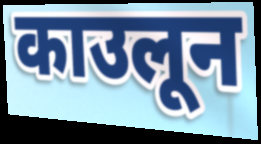
काउलून